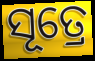
ସୂତ୍ରେ